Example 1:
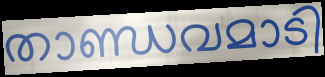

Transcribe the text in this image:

താണ്ഡവമാടി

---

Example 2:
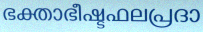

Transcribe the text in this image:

ഭക്താഭീഷ്ടഫലപ്രദാ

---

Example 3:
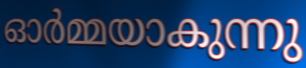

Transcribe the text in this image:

ഓർമ്മയാകുന്നു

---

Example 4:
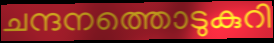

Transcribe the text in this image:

ചന്ദനത്തൊടുകുറി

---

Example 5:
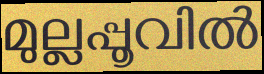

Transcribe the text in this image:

മുല്ലപ്പൂവിൽ